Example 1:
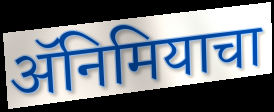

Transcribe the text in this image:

ॲनिमियाचा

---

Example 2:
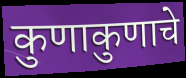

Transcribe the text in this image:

कुणाकुणाचे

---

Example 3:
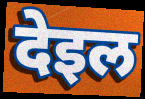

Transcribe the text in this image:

देइल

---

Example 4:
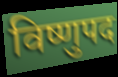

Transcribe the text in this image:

विष्णुपद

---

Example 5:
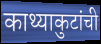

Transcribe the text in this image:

काथ्याकुटांची